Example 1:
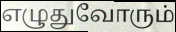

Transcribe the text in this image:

எழுதுவோரும்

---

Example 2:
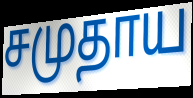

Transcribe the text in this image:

சமுதாய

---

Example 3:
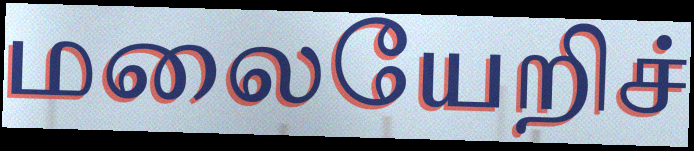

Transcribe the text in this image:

மலையேறிச்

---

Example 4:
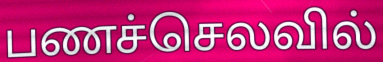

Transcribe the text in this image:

பணச்செலவில்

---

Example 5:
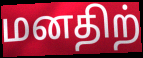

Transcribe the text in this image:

மனதிற்